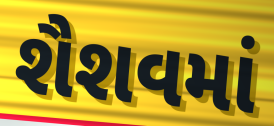
શૈશવમાં